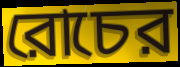
রোচের